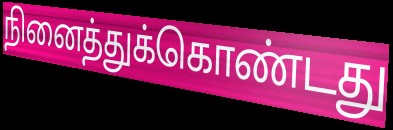
நினைத்துக்கொண்டது